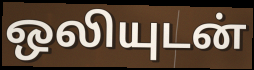
ஒலியுடன்